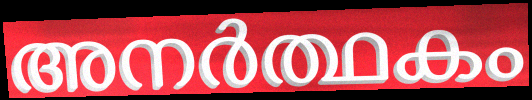
അനർത്ഥകം